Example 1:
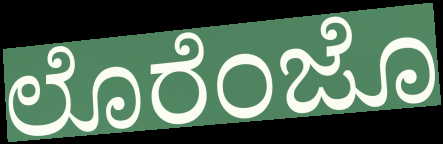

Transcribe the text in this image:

ಲೊರೆಂಜೊ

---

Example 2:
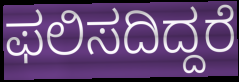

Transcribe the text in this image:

ಫಲಿಸದಿದ್ದರೆ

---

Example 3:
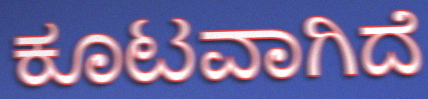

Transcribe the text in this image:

ಕೂಟವಾಗಿದೆ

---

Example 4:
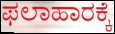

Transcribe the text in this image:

ಫಲಾಹಾರಕ್ಕೆ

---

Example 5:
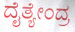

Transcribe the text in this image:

ದೈತ್ಯೇಂದ್ರ